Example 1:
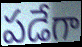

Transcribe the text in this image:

పడేగా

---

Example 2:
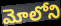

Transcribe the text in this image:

మోలోని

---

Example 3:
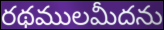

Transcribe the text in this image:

రథములమీదను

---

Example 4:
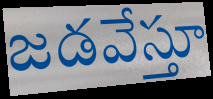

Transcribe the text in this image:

జడవేస్తూ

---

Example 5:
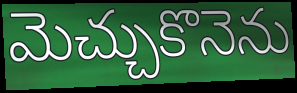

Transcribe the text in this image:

మెచ్చుకొనెను